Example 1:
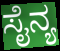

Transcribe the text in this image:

ಸೈನ್ಯ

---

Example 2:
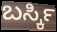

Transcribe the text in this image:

ಬರ್ಸ್ಕಿ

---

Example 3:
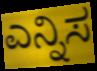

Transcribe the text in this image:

ಎನ್ನಿಸ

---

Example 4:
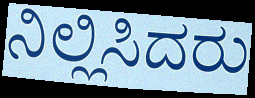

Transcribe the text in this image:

ನಿಲ್ಲಿಸಿದರು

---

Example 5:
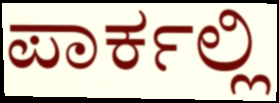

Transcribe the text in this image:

ಪಾರ್ಕಲ್ಲಿ